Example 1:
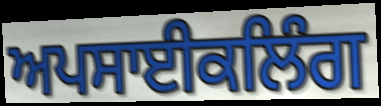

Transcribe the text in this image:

ਅਪਸਾਈਕਲਿੰਗ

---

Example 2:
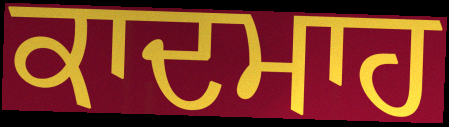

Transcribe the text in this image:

ਕਾਦਮਾਹ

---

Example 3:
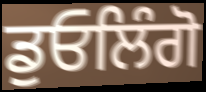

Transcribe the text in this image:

ਡੁਓਲਿੰਗੋ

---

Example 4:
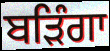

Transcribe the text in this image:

ਬੜਿੰਗਾ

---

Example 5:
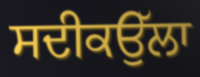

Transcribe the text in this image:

ਸਦੀਕਉੱਲਾ